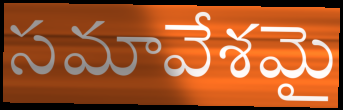
సమావేశమై